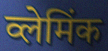
व्लेमिंक